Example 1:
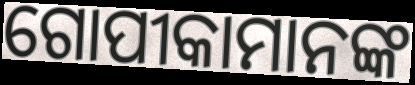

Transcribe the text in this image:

ଗୋପୀକାମାନଙ୍କ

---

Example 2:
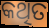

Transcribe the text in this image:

କଥିତ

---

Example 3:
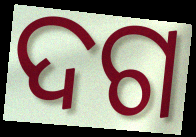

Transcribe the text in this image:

ଦଗ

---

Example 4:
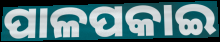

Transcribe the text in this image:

ପାଳପକାଇ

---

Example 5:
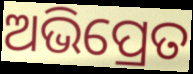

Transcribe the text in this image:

ଅଭିପ୍ରେତ